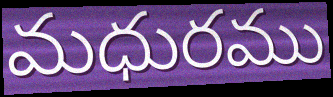
మధురము